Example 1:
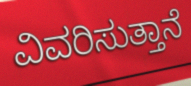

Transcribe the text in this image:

ವಿವರಿಸುತ್ತಾನೆ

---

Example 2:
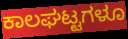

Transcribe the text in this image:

ಕಾಲಘಟ್ಟಗಳೂ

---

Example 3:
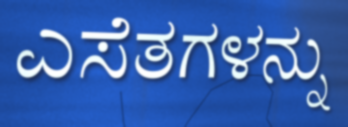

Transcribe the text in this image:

ಎಸೆತಗಳನ್ನು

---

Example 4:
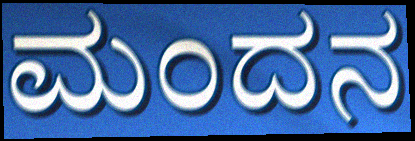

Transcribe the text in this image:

ಮಂದನ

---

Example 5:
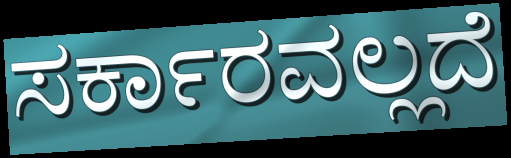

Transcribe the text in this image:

ಸರ್ಕಾರವಲ್ಲದೆ